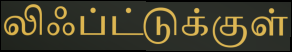
லிஃப்ட்டுக்குள்